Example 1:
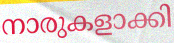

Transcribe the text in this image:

നാരുകളാക്കി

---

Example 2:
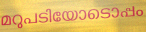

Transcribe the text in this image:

മറുപടിയോടൊപ്പം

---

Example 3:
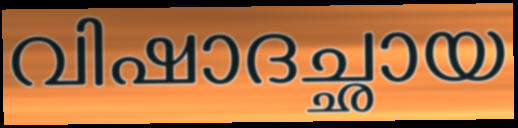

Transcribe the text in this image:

വിഷാദച്ഛായ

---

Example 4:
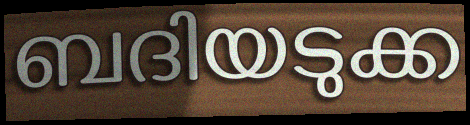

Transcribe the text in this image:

ബദിയടുക്ക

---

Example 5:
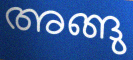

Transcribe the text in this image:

അങ്ങു